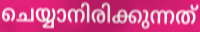
ചെയ്യാനിരിക്കുന്നത്